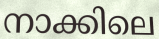
നാക്കിലെ